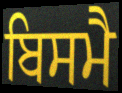
ਬਿਸਮੈ